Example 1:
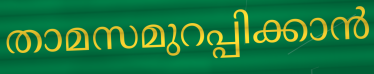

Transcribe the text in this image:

താമസമുറപ്പിക്കാൻ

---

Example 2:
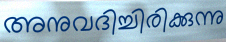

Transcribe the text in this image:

അനുവദിച്ചിരിക്കുന്നു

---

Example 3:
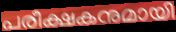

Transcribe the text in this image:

പരീക്ഷകനുമായി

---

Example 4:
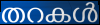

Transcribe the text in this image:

തറകൾ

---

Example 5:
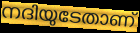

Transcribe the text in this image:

നദിയുടേതാണ്